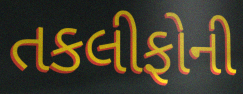
તકલીફોની